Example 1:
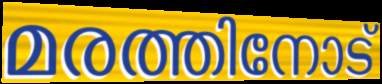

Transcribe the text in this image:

മരത്തിനോട്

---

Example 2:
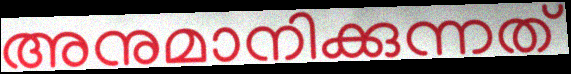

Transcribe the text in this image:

അനുമാനിക്കുന്നത്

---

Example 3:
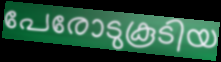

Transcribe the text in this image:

പേരോടുകൂടിയ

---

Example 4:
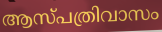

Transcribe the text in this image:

ആസ്പത്രിവാസം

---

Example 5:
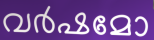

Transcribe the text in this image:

വർഷമോ